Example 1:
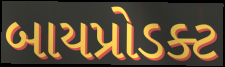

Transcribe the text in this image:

બાયપ્રોડક્ટ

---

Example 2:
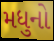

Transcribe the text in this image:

મધુનો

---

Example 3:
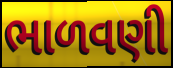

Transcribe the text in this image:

ભાળવણી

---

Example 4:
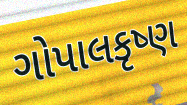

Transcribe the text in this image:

ગોપાલકૃષ્ણ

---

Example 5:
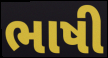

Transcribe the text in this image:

ભાષી